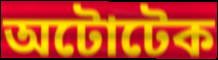
অটোটেক